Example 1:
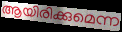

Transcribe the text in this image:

ആയിരിക്കുമെന്ന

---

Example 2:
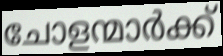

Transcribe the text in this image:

ചോളന്മാർക്ക്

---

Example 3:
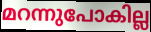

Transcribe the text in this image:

മറന്നുപോകില്ല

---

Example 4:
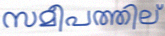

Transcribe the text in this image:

സമീപത്തില്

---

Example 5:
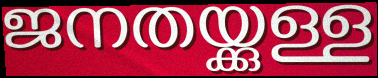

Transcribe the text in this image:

ജനതയ്ക്കുള്ള